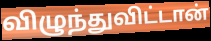
விழுந்துவிட்டான்